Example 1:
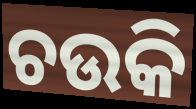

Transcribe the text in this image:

ଚଉକି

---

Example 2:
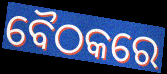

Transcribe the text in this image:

ବୈଠକରେ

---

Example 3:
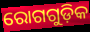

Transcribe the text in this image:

ରୋଗଗୁଡ଼ିକ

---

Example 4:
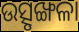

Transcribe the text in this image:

ଉତ୍ସୃଙ୍ଖଳା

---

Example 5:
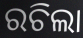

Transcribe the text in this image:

ରଚିଲା